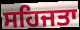
ਸਹਿਜਤਾ